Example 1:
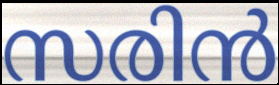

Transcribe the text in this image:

സരിൻ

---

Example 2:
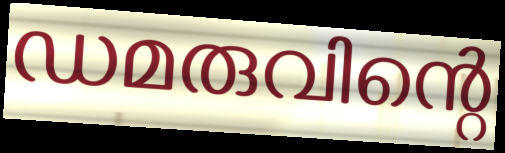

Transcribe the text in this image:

ഡമരുവിന്റെ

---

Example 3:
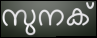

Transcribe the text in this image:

സുനക്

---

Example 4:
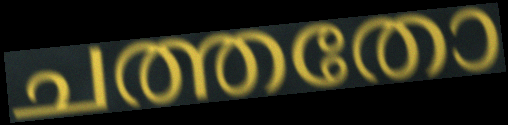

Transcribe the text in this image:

ചത്തതോ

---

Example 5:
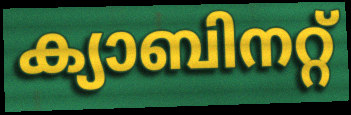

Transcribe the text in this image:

ക്യാബിനറ്റ്